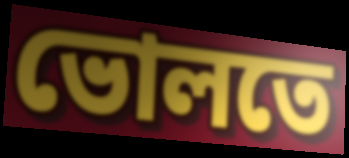
ভোলতে